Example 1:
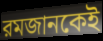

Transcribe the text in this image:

রমজানকেই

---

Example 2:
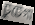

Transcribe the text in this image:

টুটেগা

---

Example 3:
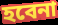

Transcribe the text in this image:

হবেনা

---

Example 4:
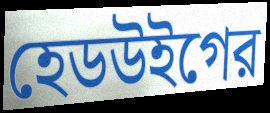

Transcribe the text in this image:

হেডউইগের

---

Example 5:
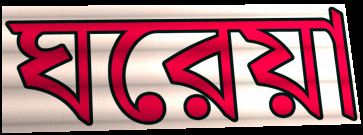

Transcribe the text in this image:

ঘরেয়া